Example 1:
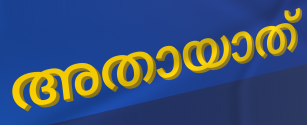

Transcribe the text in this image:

അതായാത്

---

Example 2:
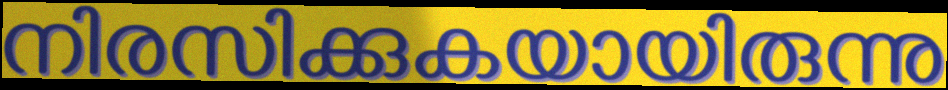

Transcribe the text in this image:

നിരസിക്കുകയായിരുന്നു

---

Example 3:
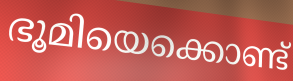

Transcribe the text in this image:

ഭൂമിയെക്കൊണ്ട്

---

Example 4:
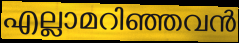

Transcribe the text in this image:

എല്ലാമറിഞ്ഞവൻ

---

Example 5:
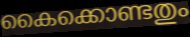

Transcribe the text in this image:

കൈക്കൊണ്ടതും